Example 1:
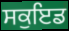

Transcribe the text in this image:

ਸਕੁਇਡ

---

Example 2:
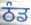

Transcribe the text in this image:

ਠੰਡ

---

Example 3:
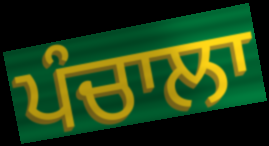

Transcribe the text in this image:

ਪੰਚਾਲਾ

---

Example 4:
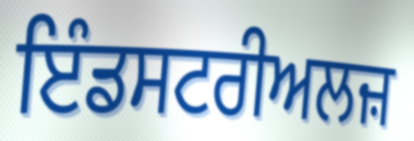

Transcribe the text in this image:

ਇੰਡਸਟਰੀਅਲਜ਼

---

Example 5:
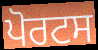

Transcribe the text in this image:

ਪੋਰਟਸ